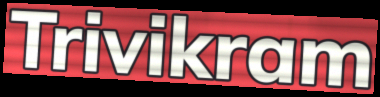
Trivikram